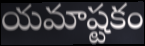
యమాష్టకం